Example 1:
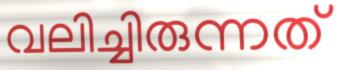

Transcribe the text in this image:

വലിച്ചിരുന്നത്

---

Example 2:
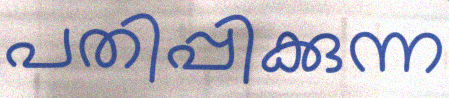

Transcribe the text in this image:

പതിപ്പിക്കുന്ന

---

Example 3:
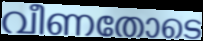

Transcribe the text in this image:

വീണതോടെ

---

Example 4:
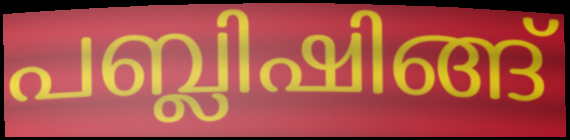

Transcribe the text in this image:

പബ്ലിഷിങ്ങ്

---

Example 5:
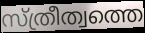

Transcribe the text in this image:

സ്ത്രീത്വത്തെ